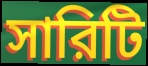
সারিটি